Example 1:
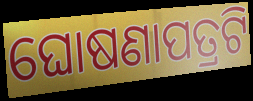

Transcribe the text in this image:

ଘୋଷଣାପତ୍ରଟି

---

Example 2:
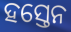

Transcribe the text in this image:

ହସ୍ତେନ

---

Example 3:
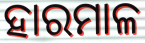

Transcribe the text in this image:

ହାରମାଳ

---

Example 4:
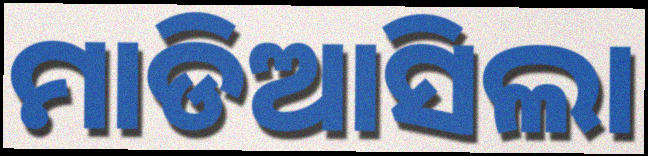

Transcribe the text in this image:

ମାଡିଆସିଲା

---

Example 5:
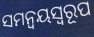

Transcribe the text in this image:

ସମନ୍ୱୟସ୍ୱରୂପ